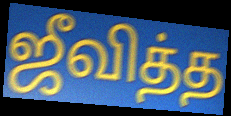
ஜீவித்த